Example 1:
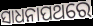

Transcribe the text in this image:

ସାଧନାପଥରେ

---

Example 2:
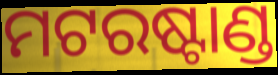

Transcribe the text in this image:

ମଟରଷ୍ଟାଣ୍ଡ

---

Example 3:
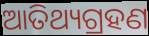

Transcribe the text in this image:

ଆତିଥ୍ୟଗ୍ରହଣ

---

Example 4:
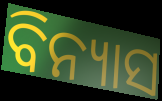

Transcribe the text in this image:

ବିନ୍ୟାସ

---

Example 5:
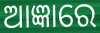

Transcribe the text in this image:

ଆଜ୍ଞାରେ